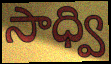
సాధ్వి